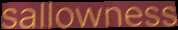
sallowness